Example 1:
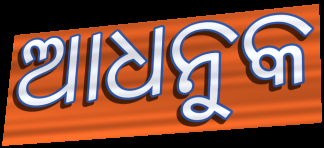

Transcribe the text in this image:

ଆଧନୁକ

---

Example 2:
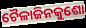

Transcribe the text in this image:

ଚୈଳାଜିନକୁଶୋ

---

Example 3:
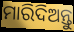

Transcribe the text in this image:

ମାରିଦିଅନ୍ତୁ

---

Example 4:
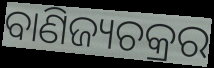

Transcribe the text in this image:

ବାଣିଜ୍ୟଚକ୍ରର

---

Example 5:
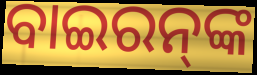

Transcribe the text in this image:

ବାଇରନ୍‌ଙ୍କ